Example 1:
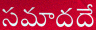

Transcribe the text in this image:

సమాదదే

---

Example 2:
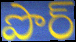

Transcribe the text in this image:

పొర్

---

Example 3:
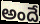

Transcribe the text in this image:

అందే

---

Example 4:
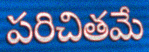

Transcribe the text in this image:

పరిచితమే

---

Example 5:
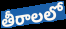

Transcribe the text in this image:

తీరాలలో